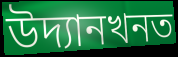
উদ্যানখনত